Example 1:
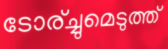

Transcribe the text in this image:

ടോര്ച്ചുമെടുത്ത്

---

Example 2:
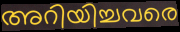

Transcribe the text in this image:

അറിയിച്ചവരെ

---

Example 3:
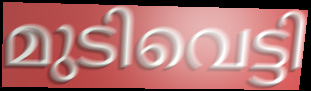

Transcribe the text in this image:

മുടിവെട്ടി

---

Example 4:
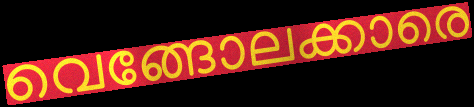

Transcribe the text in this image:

വെങ്ങോലക്കാരെ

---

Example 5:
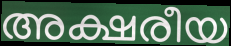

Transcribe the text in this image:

അക്ഷരീയ